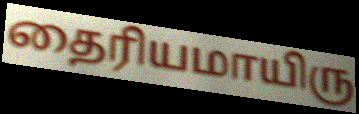
தைரியமாயிரு